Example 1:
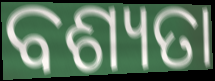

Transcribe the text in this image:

ବଶ୍ୟତା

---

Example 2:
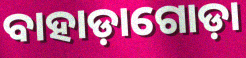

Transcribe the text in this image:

ବାହାଡ଼ାଗୋଡ଼ା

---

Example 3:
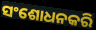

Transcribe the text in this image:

ସଂଶୋଧନକରି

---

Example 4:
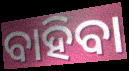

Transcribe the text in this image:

ବାହିବା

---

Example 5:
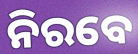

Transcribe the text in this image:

ନିରବେ